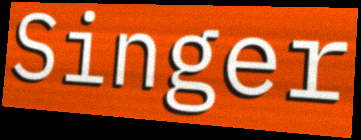
Singer